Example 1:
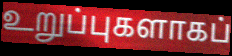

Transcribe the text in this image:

உறுப்புகளாகப்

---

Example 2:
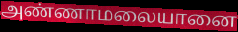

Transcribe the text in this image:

அண்ணாமலையானை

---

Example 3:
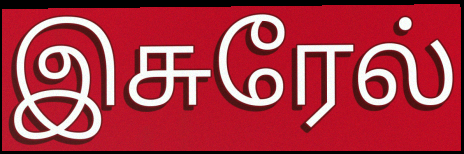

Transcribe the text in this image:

இசுரேல்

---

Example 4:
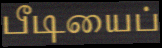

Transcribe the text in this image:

பீடியைப்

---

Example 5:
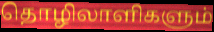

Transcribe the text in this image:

தொழிலாளிகளும்